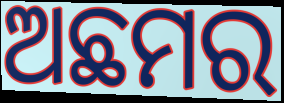
ଅଛମର